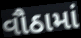
વૌઠામાં